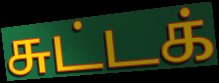
சுட்டக்